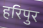
हरिपुर